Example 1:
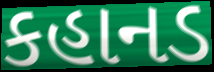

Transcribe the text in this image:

કહાનડ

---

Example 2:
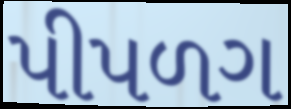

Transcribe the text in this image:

પીપળગ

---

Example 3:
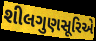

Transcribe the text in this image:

શીલગુણસૂરિએ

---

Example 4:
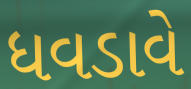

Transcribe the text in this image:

ધવડાવે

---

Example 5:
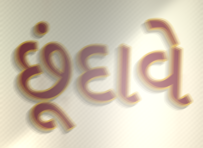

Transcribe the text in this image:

છૂંદાવે